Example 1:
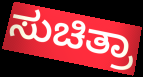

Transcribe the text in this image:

ಸುಚಿತ್ರಾ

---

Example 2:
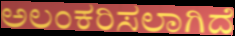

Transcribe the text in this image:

ಅಲಂಕರಿಸಲಾಗಿದೆ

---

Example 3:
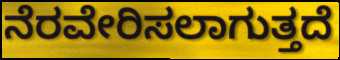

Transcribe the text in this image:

ನೆರವೇರಿಸಲಾಗುತ್ತದೆ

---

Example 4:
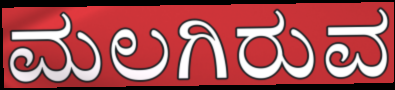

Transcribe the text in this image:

ಮಲಗಿರುವ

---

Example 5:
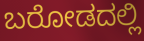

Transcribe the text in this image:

ಬರೋಡದಲ್ಲಿ